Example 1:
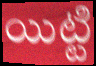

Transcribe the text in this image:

యిట్టి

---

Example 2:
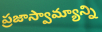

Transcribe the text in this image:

ప్రజాస్వామ్యాన్ని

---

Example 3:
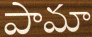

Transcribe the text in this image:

పామా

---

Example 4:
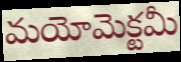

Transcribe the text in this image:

మయోమెక్టమీ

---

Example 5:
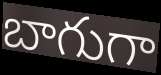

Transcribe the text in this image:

బాగుగా